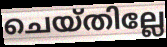
ചെയ്തില്ലേ